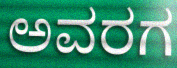
ಅವರಗ